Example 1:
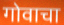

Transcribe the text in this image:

गोवाचा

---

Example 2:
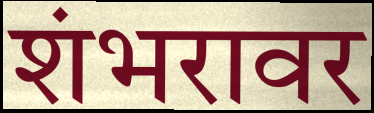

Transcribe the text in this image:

शंभरावर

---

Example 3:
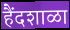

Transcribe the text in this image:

हैंदशाळा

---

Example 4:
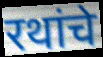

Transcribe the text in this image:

रथांचे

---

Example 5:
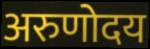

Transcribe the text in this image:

अरुणोदय